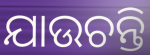
ଯାଉଚନ୍ତି